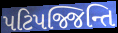
પટિપજ્જિન્તિ